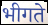
भीगते